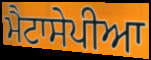
ਮੈਟਾਸੇਪੀਆ